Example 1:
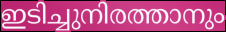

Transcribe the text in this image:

ഇടിച്ചുനിരത്താനും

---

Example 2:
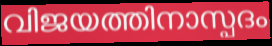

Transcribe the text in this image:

വിജയത്തിനാസ്പദം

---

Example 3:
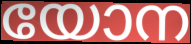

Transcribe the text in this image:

യോന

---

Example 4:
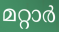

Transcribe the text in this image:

മറ്റാർ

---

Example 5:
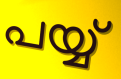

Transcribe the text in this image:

പയ്യ്